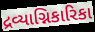
દ્રવ્યાગ્નિકારિકા